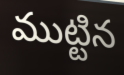
ముట్టిన